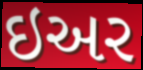
ઇઅર